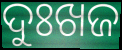
ଦୁଃଖଜ